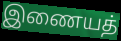
இணையத்